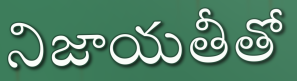
నిజాయతీతో